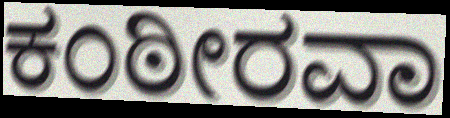
ಕಂಠೀರವಾ